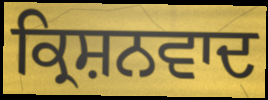
ਕ੍ਰਿਸ਼ਨਵਾਦ